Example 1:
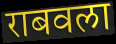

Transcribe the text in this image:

राबवला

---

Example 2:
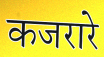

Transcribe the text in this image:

कजरारे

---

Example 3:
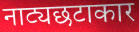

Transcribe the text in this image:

नाट्यछटाकार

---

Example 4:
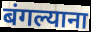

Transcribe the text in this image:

बंगल्याना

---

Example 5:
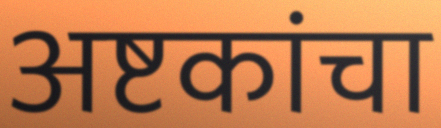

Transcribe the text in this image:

अष्टकांचा